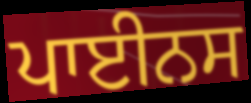
ਪਾਈਨਸ